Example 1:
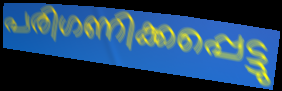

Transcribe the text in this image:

പരിഗണിക്കപ്പെട്ടു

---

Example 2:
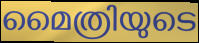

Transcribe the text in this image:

മൈത്രിയുടെ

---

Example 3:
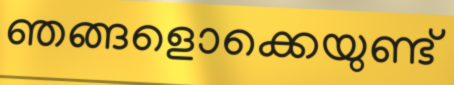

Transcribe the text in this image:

ഞങ്ങളൊക്കെയുണ്ട്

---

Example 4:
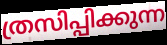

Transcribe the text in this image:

ത്രസിപ്പിക്കുന്ന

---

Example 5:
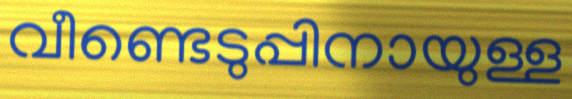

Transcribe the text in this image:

വീണ്ടെടുപ്പിനായുള്ള